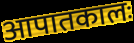
आपातकालः